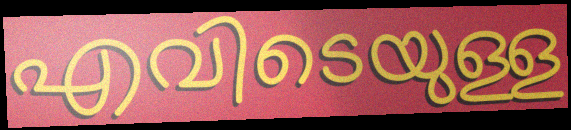
എവിടെയുള്ള